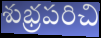
శుభ్రపరిచి